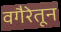
वगैरेतून